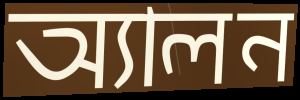
অ্যালন